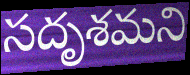
సదృశమని